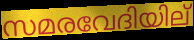
സമരവേദിയില്